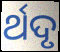
ର୍ଥଦୃ